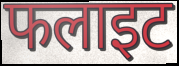
फलाइट